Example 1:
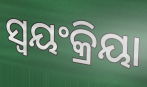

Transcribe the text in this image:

ସ୍ବୟଂକ୍ରିୟା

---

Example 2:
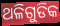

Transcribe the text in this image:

ଥଳିଗୁଡିକ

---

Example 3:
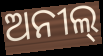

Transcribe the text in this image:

ଅନୀଲ୍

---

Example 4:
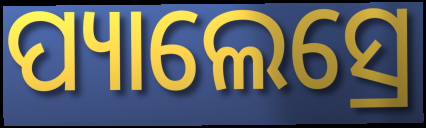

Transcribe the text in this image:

ପ୍ୟାଲେସ୍ରେ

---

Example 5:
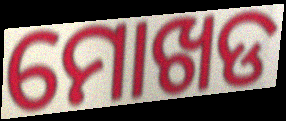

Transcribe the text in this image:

ମୋଖଡ